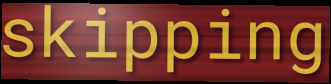
skipping